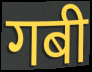
गबी